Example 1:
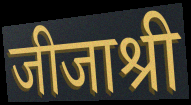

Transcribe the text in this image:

जीजाश्री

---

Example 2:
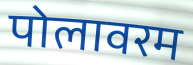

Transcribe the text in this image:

पोलावरम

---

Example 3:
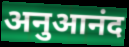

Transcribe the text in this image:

अनुआनंद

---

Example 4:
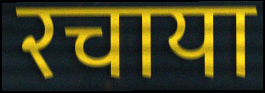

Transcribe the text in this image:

रचाया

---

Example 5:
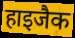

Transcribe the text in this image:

हाइजैक